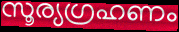
സൂര്യഗ്രഹണം